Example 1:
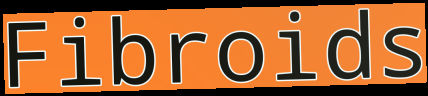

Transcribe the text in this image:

Fibroids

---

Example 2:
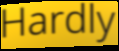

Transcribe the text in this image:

Hardly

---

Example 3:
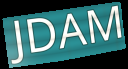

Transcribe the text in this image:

JDAM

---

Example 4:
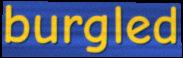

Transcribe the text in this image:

burgled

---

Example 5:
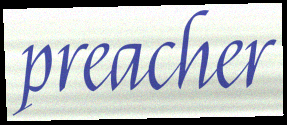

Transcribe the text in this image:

preacher